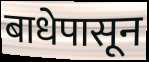
बाधेपासून